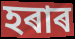
হৰাৰ